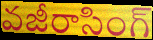
వజీరాసింగ్